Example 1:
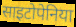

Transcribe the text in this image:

साइटोपेनिया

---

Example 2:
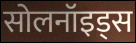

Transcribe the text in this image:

सोलनॉइड्स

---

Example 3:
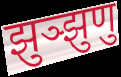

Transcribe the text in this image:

झुञ्झुणु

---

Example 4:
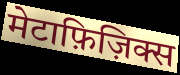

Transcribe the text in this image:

मेटाफ़िज़िक्स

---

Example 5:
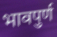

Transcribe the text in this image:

भावपुर्ण